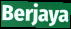
Berjaya